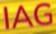
IAG